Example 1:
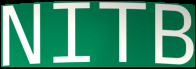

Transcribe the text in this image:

NITB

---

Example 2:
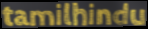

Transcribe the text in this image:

tamilhindu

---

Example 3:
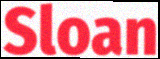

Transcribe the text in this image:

Sloan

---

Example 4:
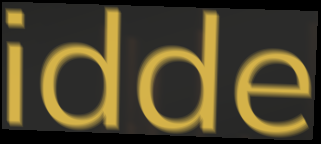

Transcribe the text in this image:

idde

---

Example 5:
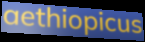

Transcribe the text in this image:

aethiopicus